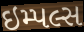
ઇમ્પલ્સ